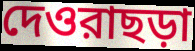
দেওরাছড়া